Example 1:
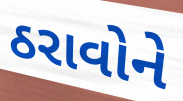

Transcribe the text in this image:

ઠરાવોને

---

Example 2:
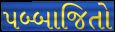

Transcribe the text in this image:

પબ્બાજિતો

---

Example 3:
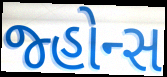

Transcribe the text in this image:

જ્હોન્સ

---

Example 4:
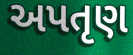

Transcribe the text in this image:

અપતૃણ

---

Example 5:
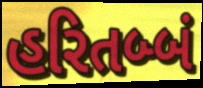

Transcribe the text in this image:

હરિતબ્બં